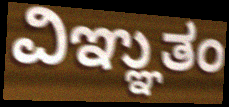
ವಿಞ್ಞುತಂ